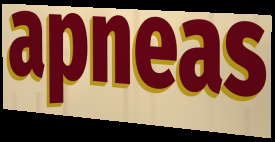
apneas